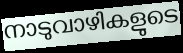
നാടുവാഴികളുടെ